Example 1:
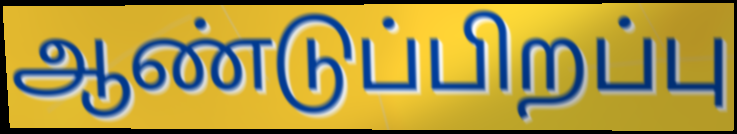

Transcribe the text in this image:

ஆண்டுப்பிறப்பு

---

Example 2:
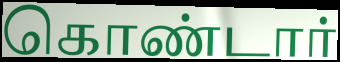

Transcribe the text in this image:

கொண்டார்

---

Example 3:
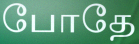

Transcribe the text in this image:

போதே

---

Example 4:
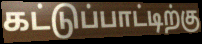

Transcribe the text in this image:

கட்டுப்பாட்டிற்கு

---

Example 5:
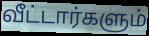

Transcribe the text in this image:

வீட்டார்களும்